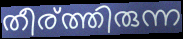
തീര്ത്തിരുന്ന